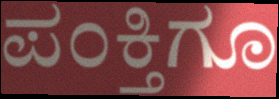
ಪಂಕ್ತಿಗೂ